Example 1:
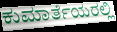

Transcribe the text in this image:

ಕುಮಾರ್ತೆಯರಲ್ಲಿ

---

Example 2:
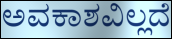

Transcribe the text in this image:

ಅವಕಾಶವಿಲ್ಲದೆ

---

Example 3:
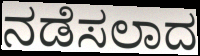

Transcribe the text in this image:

ನಡೆಸಲಾದ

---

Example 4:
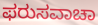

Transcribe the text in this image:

ಫರುಸವಾಚಾ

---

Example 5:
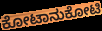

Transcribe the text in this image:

ಕೋಟಾನುಕೋಟಿ